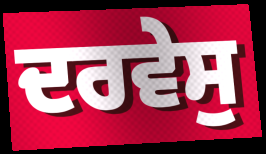
ਦਰਵੇਸੁ